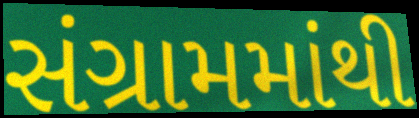
સંગ્રામમાંથી